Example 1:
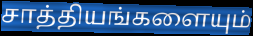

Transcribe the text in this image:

சாத்தியங்களையும்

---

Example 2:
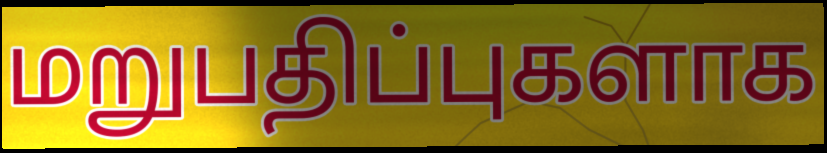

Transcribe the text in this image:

மறுபதிப்புகளாக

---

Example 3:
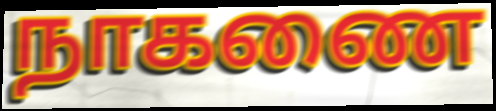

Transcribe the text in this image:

நாகணை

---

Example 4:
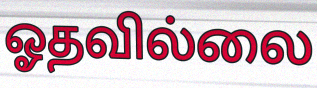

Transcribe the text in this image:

ஓதவில்லை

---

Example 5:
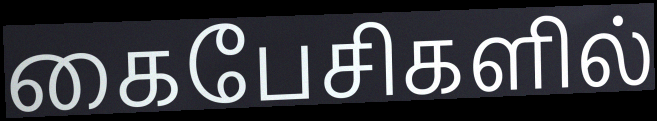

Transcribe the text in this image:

கைபேசிகளில்